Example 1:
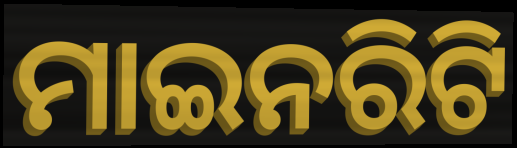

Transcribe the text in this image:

ମାଇନରିଟି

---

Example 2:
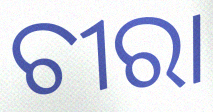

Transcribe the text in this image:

ଚୀରା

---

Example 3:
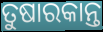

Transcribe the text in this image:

ତୁଷାରକାନ୍ତ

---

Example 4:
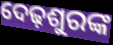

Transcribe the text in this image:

ଦେଢ଼ଶୁରଙ୍କ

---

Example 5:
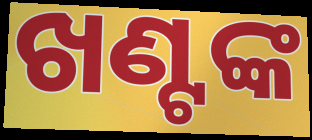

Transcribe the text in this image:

ଖଣ୍ଟଙ୍କ